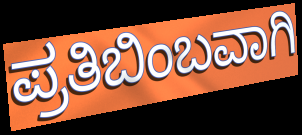
ಪ್ರತಿಬಿಂಬವಾಗಿ